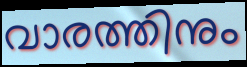
വാരത്തിനും